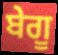
ਬੇਗੂ